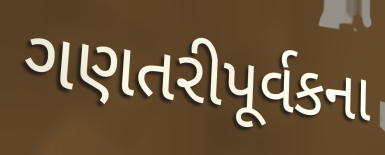
ગણતરીપૂર્વકના